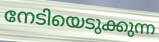
നേടിയെടുക്കുന്ന